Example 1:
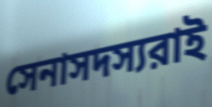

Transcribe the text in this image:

সেনাসদস্যরাই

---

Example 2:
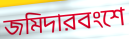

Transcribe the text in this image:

জমিদারবংশে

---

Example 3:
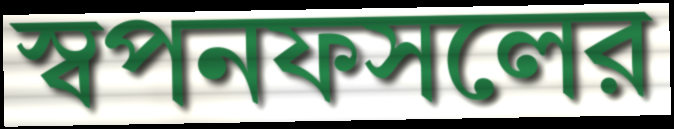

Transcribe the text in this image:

স্বপনফসলের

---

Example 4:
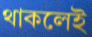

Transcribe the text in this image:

থাকলেই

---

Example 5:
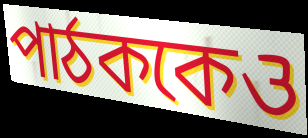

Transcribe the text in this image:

পাঠককেও